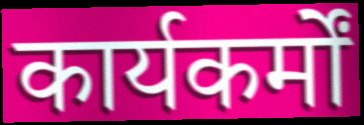
कार्यकर्मों